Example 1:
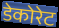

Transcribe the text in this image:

डेकोरेट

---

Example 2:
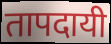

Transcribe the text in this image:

तापदायी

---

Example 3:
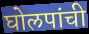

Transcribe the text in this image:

घोलपांची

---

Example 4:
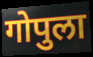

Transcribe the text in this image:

गोपुला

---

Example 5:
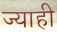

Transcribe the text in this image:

ज्याही